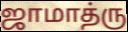
ஜாமாத்ரு